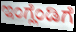
ಇಂಗ್ಲೆಂಡಿಗೆ